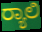
ರ‍್ಯಾಲಿ